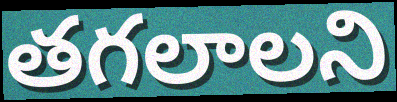
తగలాలని